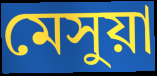
মেসুয়া